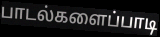
பாடல்களைப்பாடி